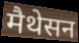
मैथेसन